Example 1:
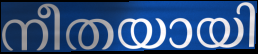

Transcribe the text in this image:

നീതയായി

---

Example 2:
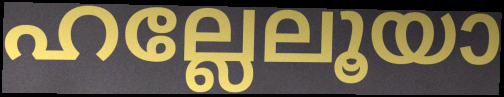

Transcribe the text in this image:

ഹല്ലേലൂയാ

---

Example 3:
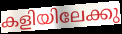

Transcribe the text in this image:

കളിയിലേക്കു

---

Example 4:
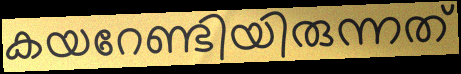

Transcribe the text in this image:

കയറേണ്ടിയിരുന്നത്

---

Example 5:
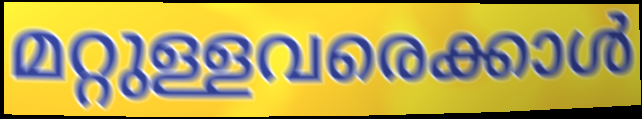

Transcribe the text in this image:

മറ്റുള്ളവരെക്കാൾ